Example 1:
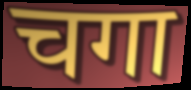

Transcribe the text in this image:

चगा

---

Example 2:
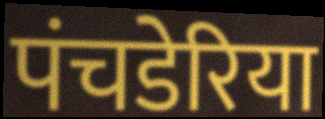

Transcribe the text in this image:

पंचडेरिया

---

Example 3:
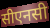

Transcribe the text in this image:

सीएनसी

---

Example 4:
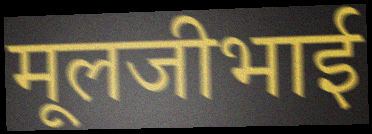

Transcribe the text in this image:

मूलजीभाई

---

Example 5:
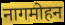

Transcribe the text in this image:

नागमोहन